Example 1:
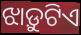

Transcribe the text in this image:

ଝାଡ଼ୁଟିଏ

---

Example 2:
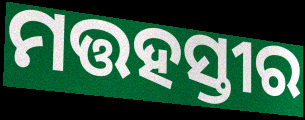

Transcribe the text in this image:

ମତ୍ତହସ୍ତୀର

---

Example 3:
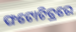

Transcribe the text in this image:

ଫଟୋଚିତ୍ରରେ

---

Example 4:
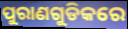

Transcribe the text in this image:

ପୁରାଣଗୁଡିକରେ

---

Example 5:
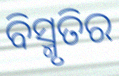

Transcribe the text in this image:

ବିସ୍ମୃତିର